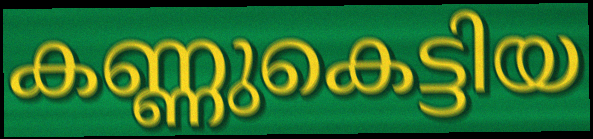
കണ്ണുകെട്ടിയ